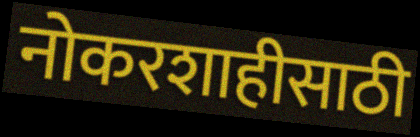
नोकरशाहीसाठी